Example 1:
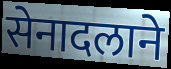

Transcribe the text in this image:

सेनादलाने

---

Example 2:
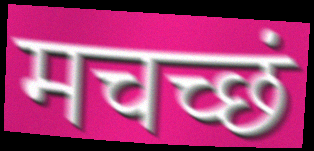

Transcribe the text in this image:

मचच्छं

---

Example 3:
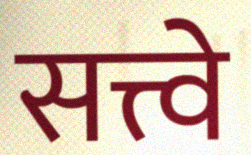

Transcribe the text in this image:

सत्त्वे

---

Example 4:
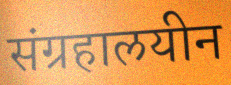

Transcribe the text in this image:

संग्रहालयीन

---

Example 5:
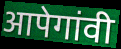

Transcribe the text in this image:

आपेगांवी